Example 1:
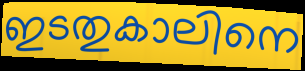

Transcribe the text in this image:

ഇടതുകാലിനെ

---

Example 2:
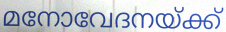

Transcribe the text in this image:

മനോവേദനയ്ക്ക്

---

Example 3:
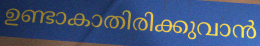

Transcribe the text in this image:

ഉണ്ടാകാതിരിക്കുവാൻ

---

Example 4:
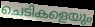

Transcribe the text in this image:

ചെടികളെയും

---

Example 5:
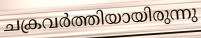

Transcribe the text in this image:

ചക്രവർത്തിയായിരുന്നു